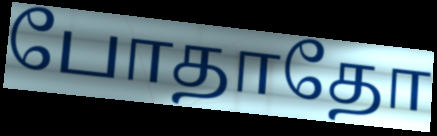
போதாதோ